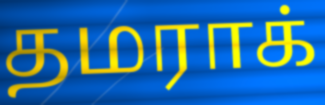
தமராக்